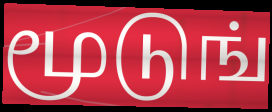
மூடுங்